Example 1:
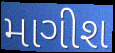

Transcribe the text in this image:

માગીશ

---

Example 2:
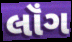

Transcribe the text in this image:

લૉંગ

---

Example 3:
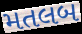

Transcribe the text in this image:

મતલબ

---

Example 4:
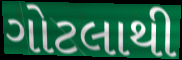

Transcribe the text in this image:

ગોટલાથી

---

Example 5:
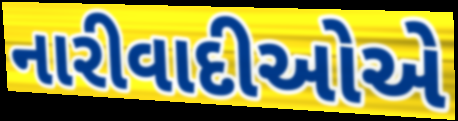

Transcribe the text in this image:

નારીવાદીઓએ